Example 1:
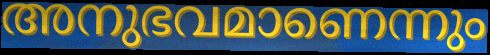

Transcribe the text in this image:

അനുഭവമാണെന്നും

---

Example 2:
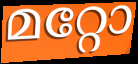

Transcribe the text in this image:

മറ്റോ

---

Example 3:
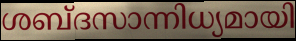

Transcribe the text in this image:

ശബ്ദസാന്നിധ്യമായി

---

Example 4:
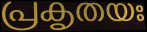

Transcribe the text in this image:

പ്രകൃതയഃ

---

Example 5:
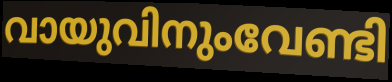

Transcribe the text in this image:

വായുവിനുംവേണ്ടി